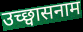
उच्छ्वासनाम